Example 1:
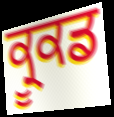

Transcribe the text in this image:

ਕ੍ਰੂਕਡ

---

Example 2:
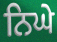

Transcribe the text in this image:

ਨਿਘੇ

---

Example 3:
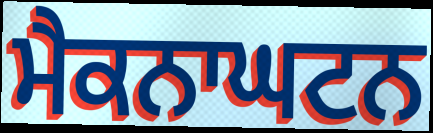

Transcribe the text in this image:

ਮੈਕਨਾਘਟਨ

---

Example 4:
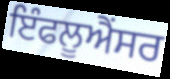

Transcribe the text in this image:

ਇੰਫਲੂਐਂਸਰ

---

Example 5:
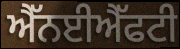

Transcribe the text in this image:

ਐੱਨਈਐੱਫਟੀ